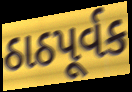
ઠાઠપૂર્વક